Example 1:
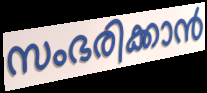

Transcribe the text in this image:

സംഭരിക്കാൻ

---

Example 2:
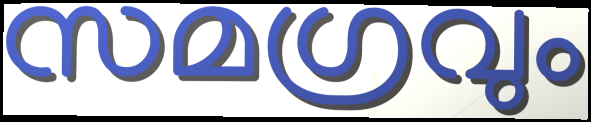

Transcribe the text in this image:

സമഗ്രവും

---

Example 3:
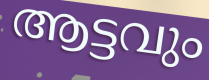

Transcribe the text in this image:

ആട്ടവും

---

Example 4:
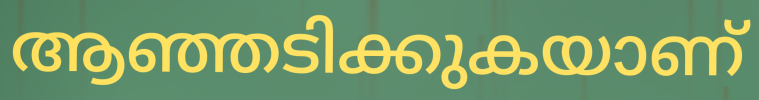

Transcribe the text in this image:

ആഞ്ഞടിക്കുകയാണ്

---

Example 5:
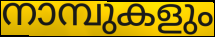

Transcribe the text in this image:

നാമ്പുകളും